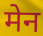
मेन